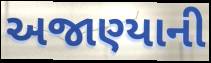
અજાણ્યાની